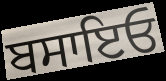
ਬਸਾਇਓ